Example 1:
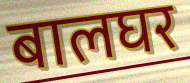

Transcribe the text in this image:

बालघर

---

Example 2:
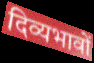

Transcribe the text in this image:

दिव्यभावों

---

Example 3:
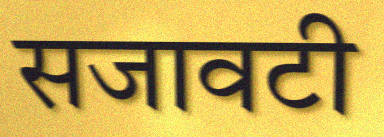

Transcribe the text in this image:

सजावटी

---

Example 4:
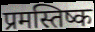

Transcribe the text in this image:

प्रमस्तिष्क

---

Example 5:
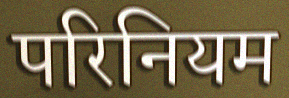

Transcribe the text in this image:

परिनियम